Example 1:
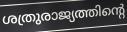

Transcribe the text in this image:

ശത്രുരാജ്യത്തിന്റെ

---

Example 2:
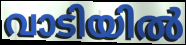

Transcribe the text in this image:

വാടിയിൽ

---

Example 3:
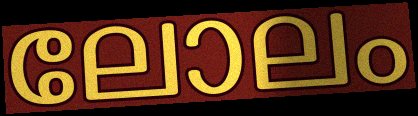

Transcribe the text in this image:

ലോലം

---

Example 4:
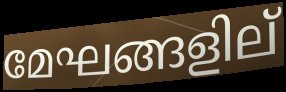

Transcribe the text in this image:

മേഘങ്ങളില്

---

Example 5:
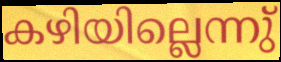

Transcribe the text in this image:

കഴിയില്ലെന്നു്